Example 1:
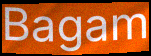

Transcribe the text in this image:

Bagam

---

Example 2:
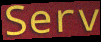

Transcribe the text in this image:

Serv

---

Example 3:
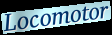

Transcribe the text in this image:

Locomotor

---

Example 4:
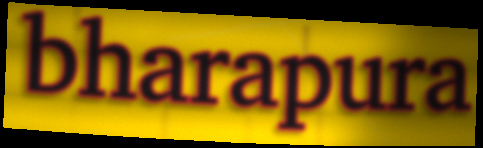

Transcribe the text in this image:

bharapura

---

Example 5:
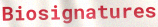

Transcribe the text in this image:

Biosignatures